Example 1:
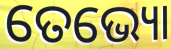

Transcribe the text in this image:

ତେଭ୍ୟୋ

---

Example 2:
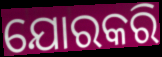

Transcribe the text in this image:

ଯୋରକରି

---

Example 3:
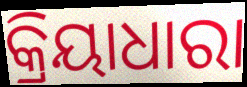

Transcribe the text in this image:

କ୍ରିୟାଧାରା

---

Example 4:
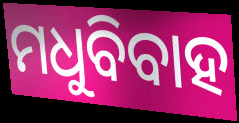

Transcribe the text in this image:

ମଧୁବିବାହ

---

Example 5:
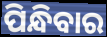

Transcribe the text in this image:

ପିନ୍ଧିବାର